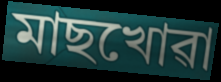
মাছখোৱা